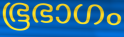
ഭൂഭാഗം